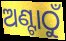
ଅଣ୍ଟାଠୁଁ